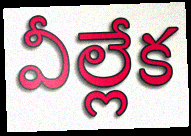
వీల్లేక